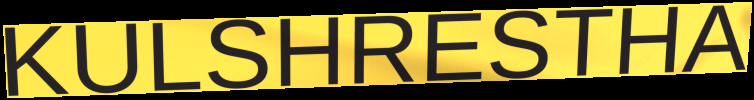
KULSHRESTHA